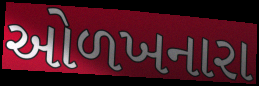
ઓળખનારા